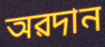
অৱদান